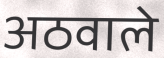
अठवाले